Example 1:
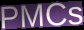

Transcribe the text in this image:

PMCs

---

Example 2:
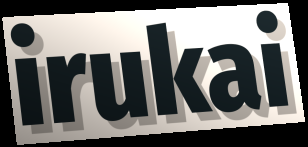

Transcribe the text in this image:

irukai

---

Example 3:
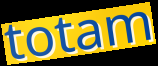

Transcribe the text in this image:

totam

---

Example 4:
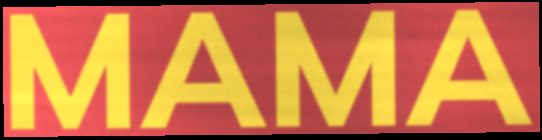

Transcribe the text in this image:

MAMA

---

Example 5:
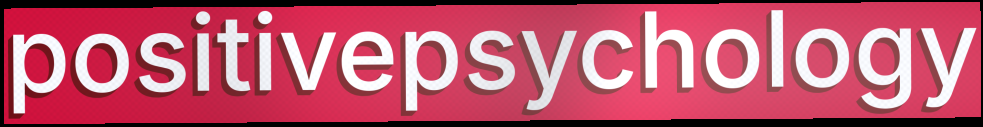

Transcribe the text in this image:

positivepsychology